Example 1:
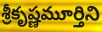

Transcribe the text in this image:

శ్రీకృష్ణమూర్తిని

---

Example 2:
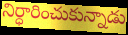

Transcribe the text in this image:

నిర్ధారించుకున్నాడు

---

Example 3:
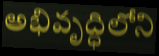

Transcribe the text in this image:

అభివృద్ధిలోని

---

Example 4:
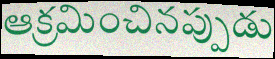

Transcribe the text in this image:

ఆక్రమించినప్పుడు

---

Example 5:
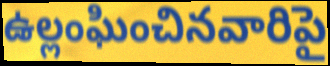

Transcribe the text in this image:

ఉల్లంఘించినవారిపై